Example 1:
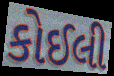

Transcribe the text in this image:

કોઈલી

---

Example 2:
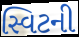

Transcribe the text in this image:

સ્વિટની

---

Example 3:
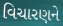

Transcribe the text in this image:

વિચારણને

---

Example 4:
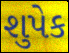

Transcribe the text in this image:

શુપેક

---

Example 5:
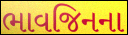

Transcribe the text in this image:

ભાવજિનના